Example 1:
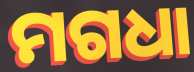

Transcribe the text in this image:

ମଗଧା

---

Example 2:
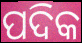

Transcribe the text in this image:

ପଦିକ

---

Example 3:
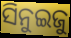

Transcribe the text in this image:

ସିନୁଇଜୁ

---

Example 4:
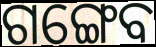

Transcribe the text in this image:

ଗଙ୍ଗେବ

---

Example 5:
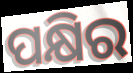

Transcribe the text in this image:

ପକ୍ଷିର